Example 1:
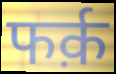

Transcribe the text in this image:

फर्क़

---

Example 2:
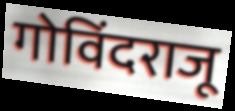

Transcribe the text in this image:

गोविंदराजू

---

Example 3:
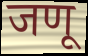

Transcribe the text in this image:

जणू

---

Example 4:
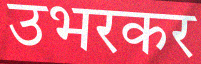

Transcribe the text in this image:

उभरकर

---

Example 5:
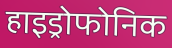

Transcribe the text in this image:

हाइड्रोफोनिक